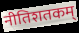
नीतिशतकम्